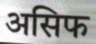
असिफ